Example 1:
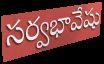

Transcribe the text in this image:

సర్వభావేషు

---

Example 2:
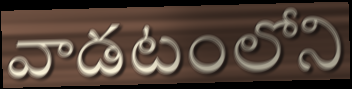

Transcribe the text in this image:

వాడటంలోని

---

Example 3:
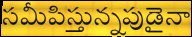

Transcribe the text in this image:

సమీపిస్తున్నపుడైనా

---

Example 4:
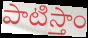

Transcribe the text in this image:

పాటిస్తాం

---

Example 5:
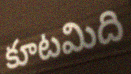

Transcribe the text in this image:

కూటమిది